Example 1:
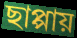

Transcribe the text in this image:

ছাপ্পায়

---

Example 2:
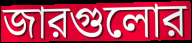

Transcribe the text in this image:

জারগুলোর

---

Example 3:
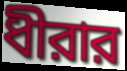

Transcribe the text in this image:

ধীরার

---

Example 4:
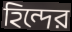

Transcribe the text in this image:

হিন্দের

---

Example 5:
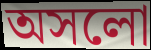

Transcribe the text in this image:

অসলো